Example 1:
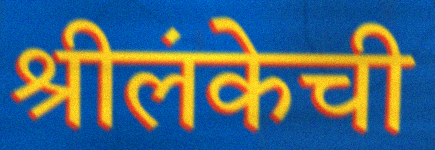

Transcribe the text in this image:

श्रीलंकेची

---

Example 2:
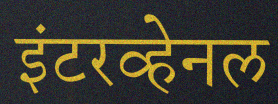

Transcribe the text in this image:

इंटरव्हेनल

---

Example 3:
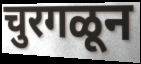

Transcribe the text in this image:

चुरगळून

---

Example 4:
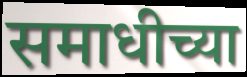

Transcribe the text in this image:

समाधीच्या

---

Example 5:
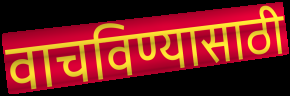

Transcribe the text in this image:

वाचविण्यासाठी